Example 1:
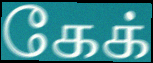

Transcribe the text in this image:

கேக்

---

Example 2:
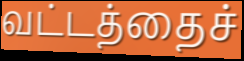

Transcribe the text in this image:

வட்டத்தைச்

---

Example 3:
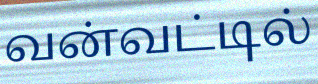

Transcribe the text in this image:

வன்வட்டில்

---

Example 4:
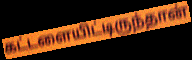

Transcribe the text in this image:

கட்டளையிட்டிருந்தான்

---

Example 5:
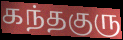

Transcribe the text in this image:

கந்தகுரு